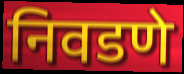
निवडणे